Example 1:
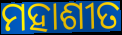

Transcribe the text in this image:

ମହାଶୀତ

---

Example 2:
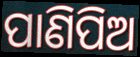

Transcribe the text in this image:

ପାଣିପିଅ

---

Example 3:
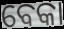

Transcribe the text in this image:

ବେକା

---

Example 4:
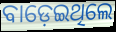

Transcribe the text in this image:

ବାଡ଼େଇଥିଲେ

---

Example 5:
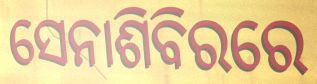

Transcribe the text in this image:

ସେନାଶିବିରରେ